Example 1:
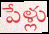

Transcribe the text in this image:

పేళ్లు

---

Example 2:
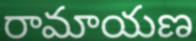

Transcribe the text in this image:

రామాయణ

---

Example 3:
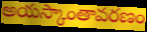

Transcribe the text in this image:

అయస్కాంతావరణం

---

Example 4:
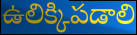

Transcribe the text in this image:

ఉలిక్కిపడాలి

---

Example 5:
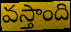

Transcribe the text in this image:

వస్తాంది